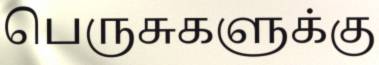
பெருசுகளுக்கு